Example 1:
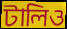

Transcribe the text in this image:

টালিও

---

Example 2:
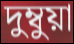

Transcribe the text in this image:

দুম্বুয়া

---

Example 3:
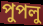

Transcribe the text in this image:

পুপলু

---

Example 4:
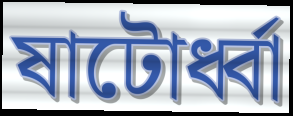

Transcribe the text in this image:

ষাটোর্ধ্বা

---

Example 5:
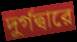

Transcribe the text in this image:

দুর্গদ্বারে